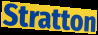
Stratton